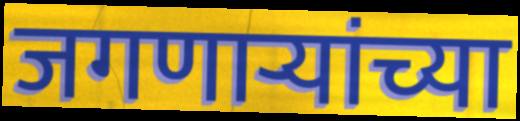
जगणाऱ्यांच्या